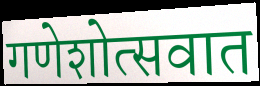
गणेशोत्सवात